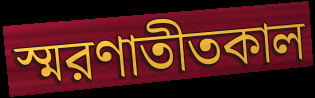
স্মরণাতীতকাল